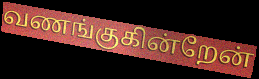
வணங்குகின்றேன்